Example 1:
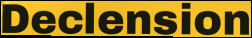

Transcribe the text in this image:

Declension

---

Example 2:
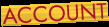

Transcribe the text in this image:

ACCOUNT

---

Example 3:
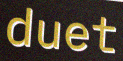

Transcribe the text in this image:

duet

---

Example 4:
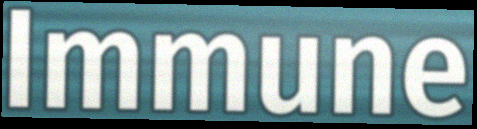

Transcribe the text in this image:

Immune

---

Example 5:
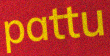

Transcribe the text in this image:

pattu